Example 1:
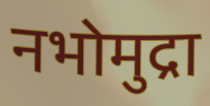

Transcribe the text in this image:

नभोमुद्रा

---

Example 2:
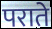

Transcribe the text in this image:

पराते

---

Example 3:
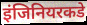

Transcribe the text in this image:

इंजिनियरकडे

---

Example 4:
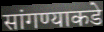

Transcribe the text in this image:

सांगण्याकडे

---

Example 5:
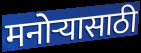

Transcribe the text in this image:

मनोऱ्यासाठी